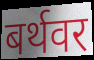
बर्थवर